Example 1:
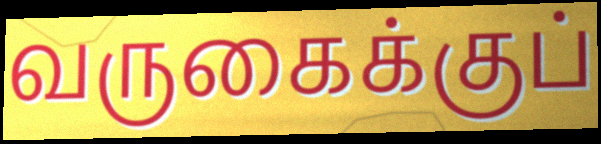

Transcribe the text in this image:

வருகைக்குப்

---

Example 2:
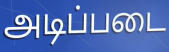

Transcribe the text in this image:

அடிப்படை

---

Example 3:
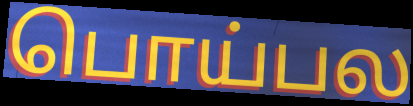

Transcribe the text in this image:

பொய்பல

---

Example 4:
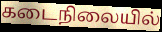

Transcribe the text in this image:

கடைநிலையில்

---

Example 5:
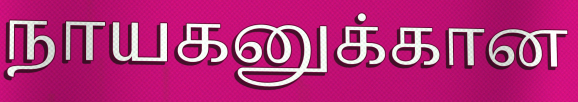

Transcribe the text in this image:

நாயகனுக்கான